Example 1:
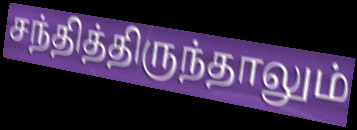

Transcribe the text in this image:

சந்தித்திருந்தாலும்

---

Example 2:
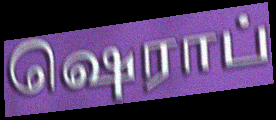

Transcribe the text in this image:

ஷெராப்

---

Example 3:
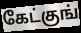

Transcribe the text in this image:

கேட்குங்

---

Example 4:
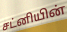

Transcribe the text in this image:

சட்னியின்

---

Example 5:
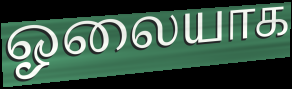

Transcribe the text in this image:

ஓலையாக